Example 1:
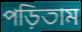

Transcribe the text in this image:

পড়িতাম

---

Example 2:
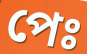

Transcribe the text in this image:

পেঃ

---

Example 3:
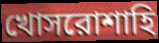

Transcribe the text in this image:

খোসরোশাহি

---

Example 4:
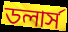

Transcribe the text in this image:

ডলার্স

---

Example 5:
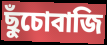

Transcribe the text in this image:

ছুঁচোবাজি